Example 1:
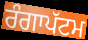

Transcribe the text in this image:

ਰੰਗਾਪੱਟਮ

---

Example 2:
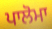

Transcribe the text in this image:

ਪਾਲੋਮਾ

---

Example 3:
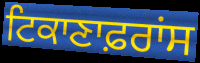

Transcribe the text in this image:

ਟਿਕਾਣਾਫ਼ਰਾਂਸ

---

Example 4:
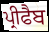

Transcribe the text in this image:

ਪ੍ਰੀਫੈਬ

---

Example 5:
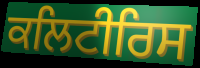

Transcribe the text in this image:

ਕਲਿਟੀਰਿਸ